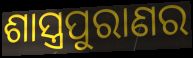
ଶାସ୍ତ୍ରପୁରାଣର